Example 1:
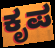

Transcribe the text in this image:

ಕೃಪ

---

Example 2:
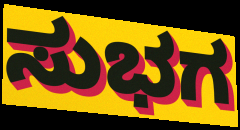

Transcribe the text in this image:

ಸುಭಗ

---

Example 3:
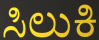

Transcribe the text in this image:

ಸಿಲುಕಿ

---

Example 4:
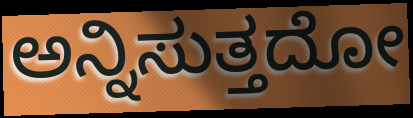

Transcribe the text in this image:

ಅನ್ನಿಸುತ್ತದೋ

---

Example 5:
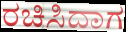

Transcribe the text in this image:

ರಚಿಸಿದಾಗ